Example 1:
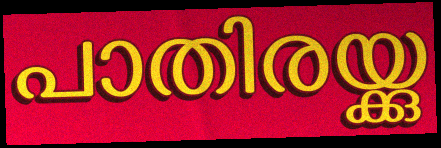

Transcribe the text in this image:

പാതിരയ്ക്കു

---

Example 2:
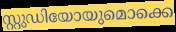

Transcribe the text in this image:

സ്റ്റുഡിയോയുമൊക്കെ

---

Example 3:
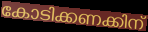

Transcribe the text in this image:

കോടിക്കണക്കിന്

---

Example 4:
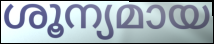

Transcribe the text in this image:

ശൂന്യമായ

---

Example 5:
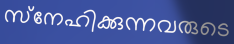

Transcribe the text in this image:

സ്‌നേഹിക്കുന്നവരുടെ